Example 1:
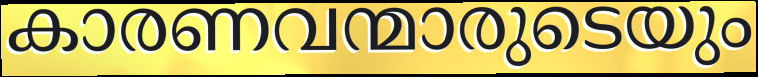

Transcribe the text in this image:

കാരണവന്മാരുടെയും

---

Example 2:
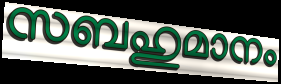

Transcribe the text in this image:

സബഹുമാനം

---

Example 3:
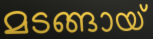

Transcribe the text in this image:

മടങ്ങായ്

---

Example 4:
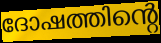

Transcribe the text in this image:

ദോഷത്തിന്റെ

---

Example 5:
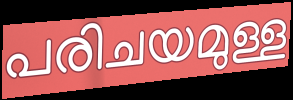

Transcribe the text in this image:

പരിചയമുള്ള